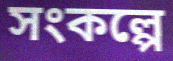
সংকল্পে